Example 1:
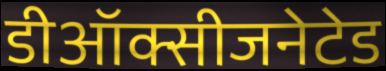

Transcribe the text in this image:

डीऑक्सीजनेटेड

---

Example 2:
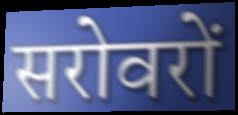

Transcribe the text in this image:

सरोवरों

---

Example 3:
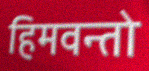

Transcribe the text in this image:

हिमवन्तो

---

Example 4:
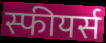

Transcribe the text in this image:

स्फीयर्स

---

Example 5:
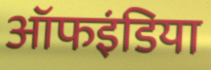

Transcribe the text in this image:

ऑफइंडिया